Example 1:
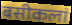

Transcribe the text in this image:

बसीकलां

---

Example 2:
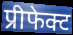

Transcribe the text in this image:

प्रीफेक्ट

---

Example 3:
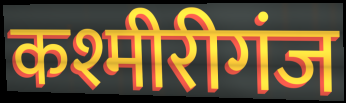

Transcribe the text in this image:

कश्मीरीगंज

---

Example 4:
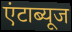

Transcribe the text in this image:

एंटाब्यूज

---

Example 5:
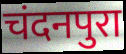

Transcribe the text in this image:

चंदनपुरा